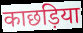
काछड़िया